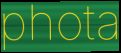
phota